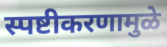
स्पष्टीकरणामुळे